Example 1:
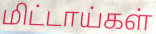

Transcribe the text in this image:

மிட்டாய்கள்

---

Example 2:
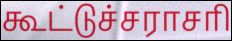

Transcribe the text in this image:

கூட்டுச்சராசரி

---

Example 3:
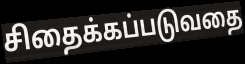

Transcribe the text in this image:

சிதைக்கப்படுவதை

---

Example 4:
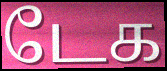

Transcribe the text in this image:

டேக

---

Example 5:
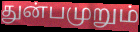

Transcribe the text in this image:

துன்பமுறும்